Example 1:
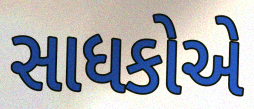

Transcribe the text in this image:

સાધકોએ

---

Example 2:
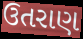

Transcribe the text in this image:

ઉતરાણ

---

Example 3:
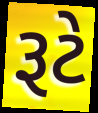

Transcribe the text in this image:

રૂટે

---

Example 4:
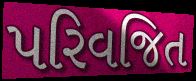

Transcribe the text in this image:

પરિવજિત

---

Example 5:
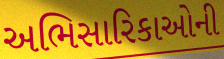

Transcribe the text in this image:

અભિસારિકાઓની